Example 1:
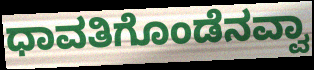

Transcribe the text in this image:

ಧಾವತಿಗೊಂಡೆನವ್ವಾ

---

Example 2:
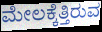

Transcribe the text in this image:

ಮೇಲಕ್ಕೆತ್ತಿರುವ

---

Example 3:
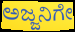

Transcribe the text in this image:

ಅಜ್ಜನಿಗೇ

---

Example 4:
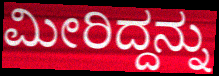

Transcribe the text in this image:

ಮೀರಿದ್ದನ್ನು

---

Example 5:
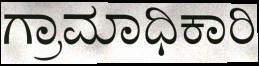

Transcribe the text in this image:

ಗ್ರಾಮಾಧಿಕಾರಿ